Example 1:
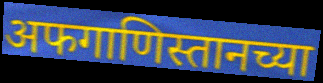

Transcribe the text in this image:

अफगाणिस्तानच्या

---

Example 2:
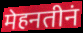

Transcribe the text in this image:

मेहनतीनं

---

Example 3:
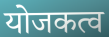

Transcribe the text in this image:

योजकत्व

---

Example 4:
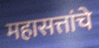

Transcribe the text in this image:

महासत्तांचे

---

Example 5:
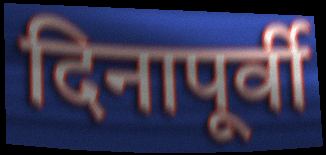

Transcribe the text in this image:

दिनापूर्वी